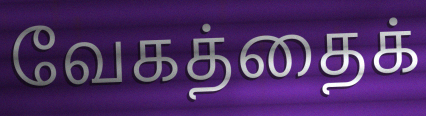
வேகத்தைக்